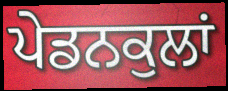
ਪੇਡਨਕੁਲਾਂ